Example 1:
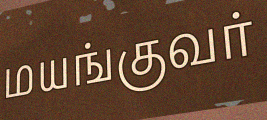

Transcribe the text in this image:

மயங்குவர்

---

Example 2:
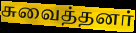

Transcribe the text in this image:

சுவைத்தனர்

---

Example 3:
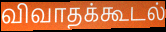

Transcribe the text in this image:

விவாதக்கூடல்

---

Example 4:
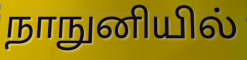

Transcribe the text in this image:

நாநுனியில்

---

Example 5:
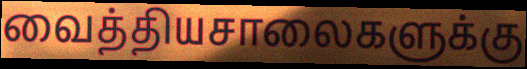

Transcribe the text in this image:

வைத்தியசாலைகளுக்கு